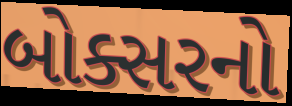
બોક્સરનો